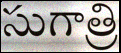
సుగాత్రి